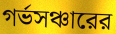
গর্ভসঞ্চারের